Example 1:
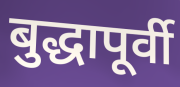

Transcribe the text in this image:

बुद्धापूर्वी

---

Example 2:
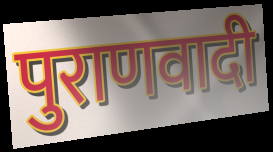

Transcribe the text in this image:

पुराणवादी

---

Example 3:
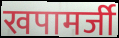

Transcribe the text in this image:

खपामर्जी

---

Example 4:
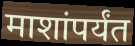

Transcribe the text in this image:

माशांपर्यंत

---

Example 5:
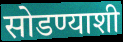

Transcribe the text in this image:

सोडण्याशी